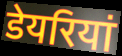
डेयरियां